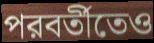
পরবর্তীতেও